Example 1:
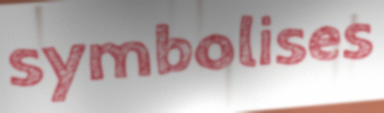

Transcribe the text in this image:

symbolises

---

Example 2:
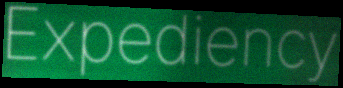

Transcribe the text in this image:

Expediency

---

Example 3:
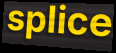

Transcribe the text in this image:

splice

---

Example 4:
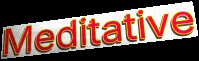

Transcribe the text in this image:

Meditative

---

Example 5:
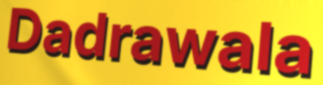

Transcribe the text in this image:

Dadrawala